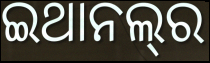
ଇଥାନଲ୍‌ର